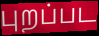
புறப்பட